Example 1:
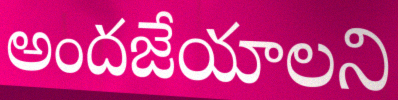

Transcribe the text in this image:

అందజేయాలని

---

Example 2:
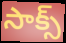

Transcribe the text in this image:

సాక్స్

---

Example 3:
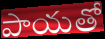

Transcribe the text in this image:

పాయతో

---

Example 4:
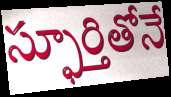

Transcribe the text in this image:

స్ఫూర్తితోనే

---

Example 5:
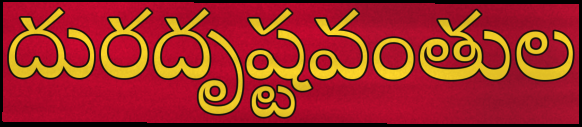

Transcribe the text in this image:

దురదృష్టవంతుల